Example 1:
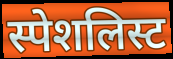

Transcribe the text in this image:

स्पेशलिस्ट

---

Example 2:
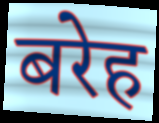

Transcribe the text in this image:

बरेह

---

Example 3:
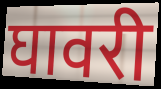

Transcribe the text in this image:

घावरी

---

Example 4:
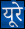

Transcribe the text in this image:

यूरे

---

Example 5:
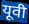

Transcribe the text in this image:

यूवी